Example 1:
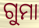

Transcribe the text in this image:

ଗୁମା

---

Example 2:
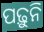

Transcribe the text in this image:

ପଢ଼ୁନି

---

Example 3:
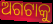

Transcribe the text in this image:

ଅଗଟାକୁ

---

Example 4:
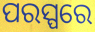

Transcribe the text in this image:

ପରସ୍ପରେ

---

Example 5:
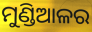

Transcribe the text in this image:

ମୁଣ୍ଡିଆଳର